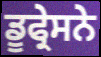
ਡੂਫ੍ਰੇਸਨੇ